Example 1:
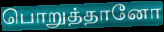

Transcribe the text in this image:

பொறுத்தானோ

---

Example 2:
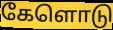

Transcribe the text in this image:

கேளொடு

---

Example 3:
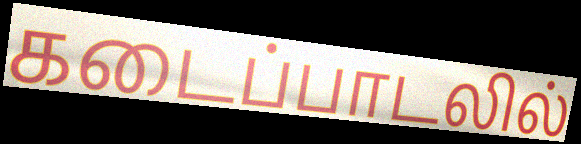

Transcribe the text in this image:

கடைப்பாடலில்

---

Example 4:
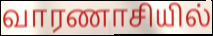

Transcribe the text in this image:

வாரணாசியில்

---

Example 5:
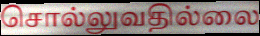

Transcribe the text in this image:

சொல்லுவதில்லை